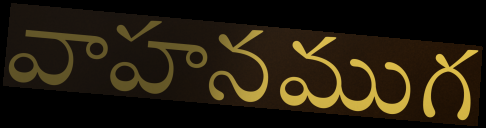
వాహనముగ